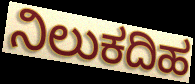
ನಿಲುಕದಿಹ